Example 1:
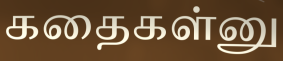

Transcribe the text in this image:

கதைகள்னு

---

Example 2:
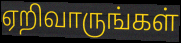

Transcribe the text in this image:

ஏறிவாருங்கள்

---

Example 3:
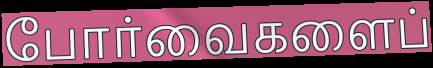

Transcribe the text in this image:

போர்வைகளைப்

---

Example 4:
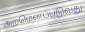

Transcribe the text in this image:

அறமெனப்படுவது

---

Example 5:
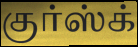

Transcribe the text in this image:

குர்ஸ்க்